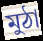
মুঠা